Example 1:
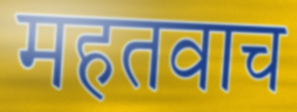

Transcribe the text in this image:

महतवाच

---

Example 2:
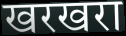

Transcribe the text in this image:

खरखरा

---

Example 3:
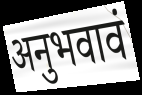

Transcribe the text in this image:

अनुभवावं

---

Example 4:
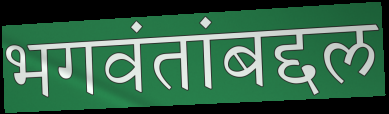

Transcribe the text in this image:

भगवंतांबद्दल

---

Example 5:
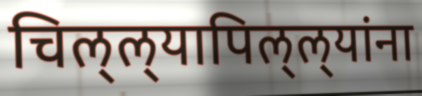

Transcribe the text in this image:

चिल्ल्यापिल्ल्यांना